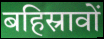
बहिस्रावों